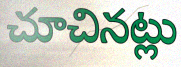
చూచినట్లు